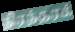
நிரந்தரக்